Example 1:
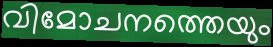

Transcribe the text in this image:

വിമോചനത്തെയും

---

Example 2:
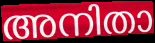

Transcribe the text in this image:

അനിതാ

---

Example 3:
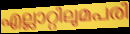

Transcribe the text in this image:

എല്ലാറ്റിലുമപരി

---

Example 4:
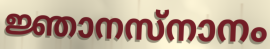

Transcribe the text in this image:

ജ്ഞാനസ്നാനം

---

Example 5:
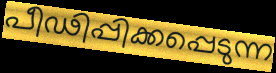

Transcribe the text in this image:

പീഢിപ്പിക്കപ്പെടുന്ന